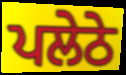
ਪਲੇਠੇ